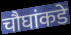
चौघांकडे